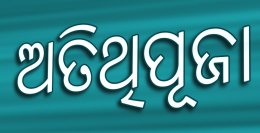
ଅତିଥିପୂଜା